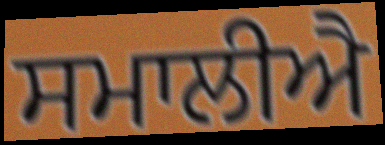
ਸਮਾਲੀਐ